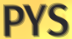
PYS